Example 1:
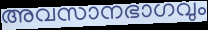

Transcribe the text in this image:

അവസാനഭാഗവും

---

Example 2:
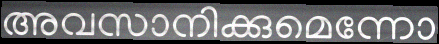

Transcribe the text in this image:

അവസാനിക്കുമെന്നോ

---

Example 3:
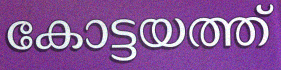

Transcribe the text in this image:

കോട്ടയത്ത്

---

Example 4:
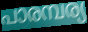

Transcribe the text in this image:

പാരമ്പര്യ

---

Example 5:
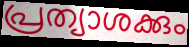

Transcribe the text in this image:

പ്രത്യാശക്കും